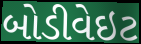
બોડીવેઇટ